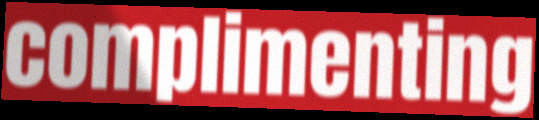
complimenting